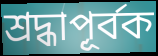
শ্রদ্ধাপূর্বক